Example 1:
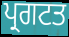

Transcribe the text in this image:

ਪ੍ਰਗਟਤ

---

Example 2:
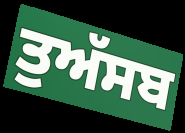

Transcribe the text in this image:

ਤੁਅੱਸਬ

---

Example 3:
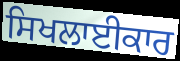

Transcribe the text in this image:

ਸਿਖਲਾਈਕਾਰ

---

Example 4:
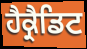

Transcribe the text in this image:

ਹੈਕ੍ਰੈਡਿਟ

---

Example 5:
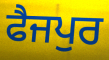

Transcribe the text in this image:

ਫੈਜਪੁਰ